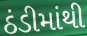
ઠંડીમાંથી